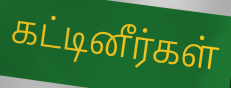
கட்டினீர்கள்